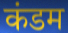
कंडम